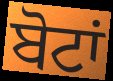
ਬੋਟਾਂ